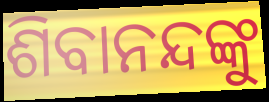
ଶିବାନନ୍ଦଙ୍କୁ